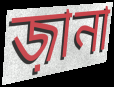
জ়ানা